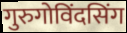
गुरुगोविंदसिंग